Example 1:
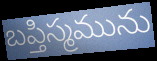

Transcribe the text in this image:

బప్తిస్మమును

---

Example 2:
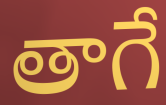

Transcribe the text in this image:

తాగే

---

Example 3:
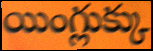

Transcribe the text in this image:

యింగ్లుక్కు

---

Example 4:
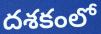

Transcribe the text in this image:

దశకంలో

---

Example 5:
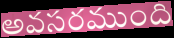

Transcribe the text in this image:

అవసరముంది